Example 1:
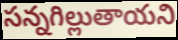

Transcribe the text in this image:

సన్నగిల్లుతాయని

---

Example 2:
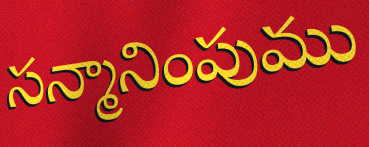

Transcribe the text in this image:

సన్మానింపుము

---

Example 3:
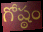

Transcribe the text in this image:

గోష్ఠం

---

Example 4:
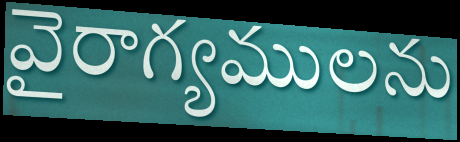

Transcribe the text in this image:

వైరాగ్యములను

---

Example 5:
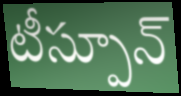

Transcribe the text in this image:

టీస్పూన్